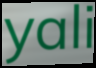
yali